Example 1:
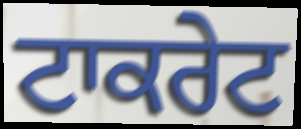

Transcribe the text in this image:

ਟਾਕਰੇਟ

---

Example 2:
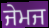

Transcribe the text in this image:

ਜੇਮਜ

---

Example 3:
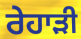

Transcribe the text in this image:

ਰੇਹਾੜੀ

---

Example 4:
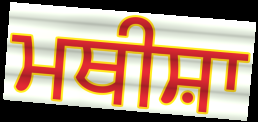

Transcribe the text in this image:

ਮਥੀਸ਼ਾ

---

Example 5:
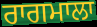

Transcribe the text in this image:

ਰਾਗਮਾਲਾ